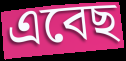
এবেছ